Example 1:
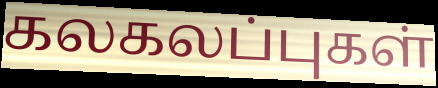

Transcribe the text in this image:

கலகலப்புகள்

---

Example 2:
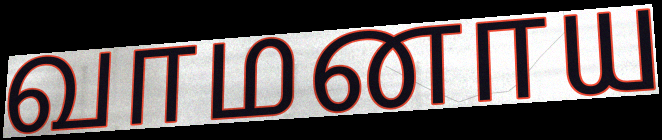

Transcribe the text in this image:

வாமனாய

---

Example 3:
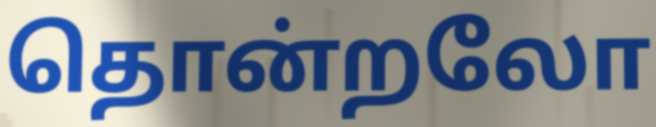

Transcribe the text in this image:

தொன்றலோ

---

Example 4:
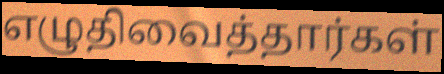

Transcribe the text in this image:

எழுதிவைத்தார்கள்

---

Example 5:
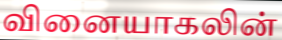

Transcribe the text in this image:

வினையாகலின்